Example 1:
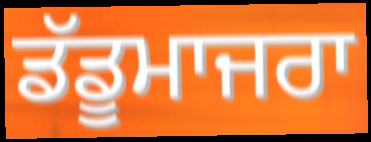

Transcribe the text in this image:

ਡੱਡੂਮਾਜਰਾ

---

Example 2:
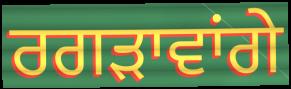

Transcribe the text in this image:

ਰਗੜਾਵਾਂਗੇ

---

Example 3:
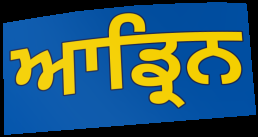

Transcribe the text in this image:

ਆਡ੍ਰਿਨ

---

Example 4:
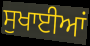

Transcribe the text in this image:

ਸੁਖਾਈਆਂ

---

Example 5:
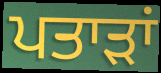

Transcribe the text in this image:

ਪਤਾੜਾਂ